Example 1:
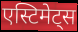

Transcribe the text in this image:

एस्टिमेट्स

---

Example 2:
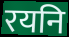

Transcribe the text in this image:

रयनि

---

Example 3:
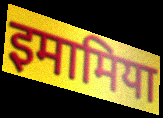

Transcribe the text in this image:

इमामिया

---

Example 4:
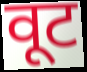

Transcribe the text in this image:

वूट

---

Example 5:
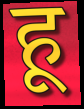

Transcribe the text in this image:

हू